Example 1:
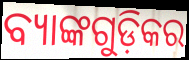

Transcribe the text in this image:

ବ୍ୟାଙ୍କଗୁଡ଼ିକର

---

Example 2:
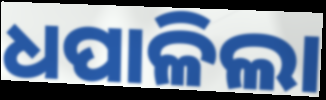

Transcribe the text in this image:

ଧପାଳିଲା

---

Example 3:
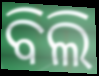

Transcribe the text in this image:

ବିଲି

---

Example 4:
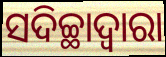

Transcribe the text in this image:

ସଦିଚ୍ଛାଦ୍ୱାରା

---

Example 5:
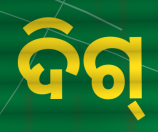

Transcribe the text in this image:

ଦିଗ୍